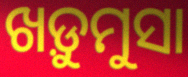
ଖଡ଼ୁମୁସା